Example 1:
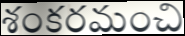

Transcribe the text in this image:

శంకరమంచి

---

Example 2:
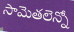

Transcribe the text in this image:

సామెతలెన్నో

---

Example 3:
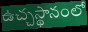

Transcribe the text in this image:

ఉచ్చస్థానంలో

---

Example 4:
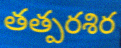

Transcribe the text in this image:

తత్పరశిర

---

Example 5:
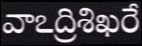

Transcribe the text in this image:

వాఽద్రిశిఖరే